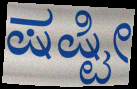
ಷಷ್ಟೀ